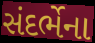
સંદર્ભેના